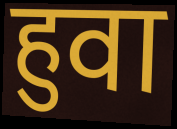
हुवा